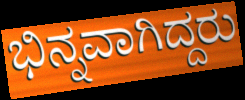
ಭಿನ್ನವಾಗಿದ್ದರು